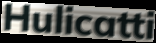
Hulicatti